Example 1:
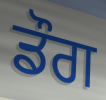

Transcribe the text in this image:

ਡੌਗ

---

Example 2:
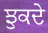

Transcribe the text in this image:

ਝੁਕਦੇ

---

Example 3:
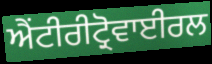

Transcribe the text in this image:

ਐਂਟੀਰੀਟ੍ਰੋਵਾਈਰਲ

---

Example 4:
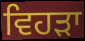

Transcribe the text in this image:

ਵਿਹੜਾ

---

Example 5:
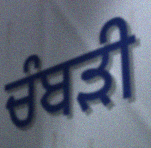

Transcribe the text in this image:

ਚੰਬੜੀ